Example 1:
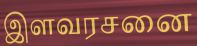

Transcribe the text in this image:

இளவரசனை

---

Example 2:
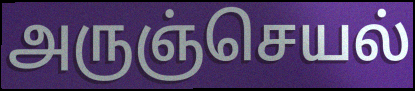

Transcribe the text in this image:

அருஞ்செயல்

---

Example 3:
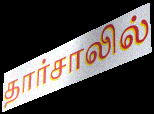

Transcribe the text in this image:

தார்சாலில்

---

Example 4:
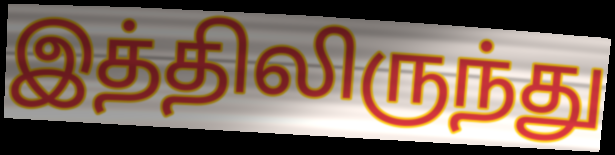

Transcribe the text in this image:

இத்திலிருந்து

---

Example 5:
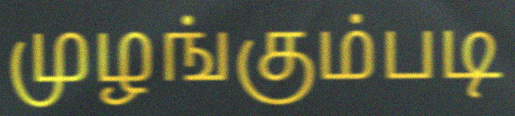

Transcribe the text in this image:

முழங்கும்படி